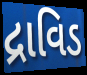
દ્રાવિડ